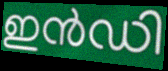
ഇൻഡി